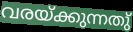
വരയ്ക്കുന്നതു്